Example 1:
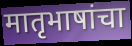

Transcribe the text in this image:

मातृभाषांचा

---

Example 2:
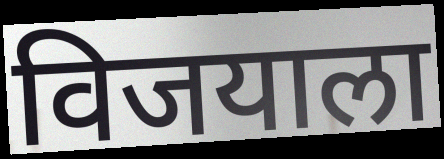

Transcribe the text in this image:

विजयाला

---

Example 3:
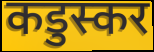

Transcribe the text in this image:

कडुस्कर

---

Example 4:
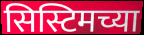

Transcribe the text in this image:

सिस्टिमच्या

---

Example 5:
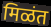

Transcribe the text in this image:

मिळंत